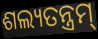
ଶଲ୍ୟତନ୍ତ୍ରମ୍